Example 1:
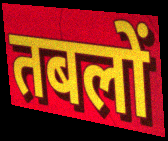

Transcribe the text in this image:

तबलों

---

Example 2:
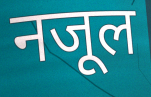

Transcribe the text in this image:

नजूल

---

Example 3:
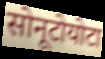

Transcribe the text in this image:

सोनूटोयोटा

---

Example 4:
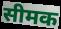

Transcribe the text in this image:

सीमक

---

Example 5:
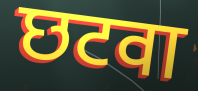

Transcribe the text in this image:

छटवा